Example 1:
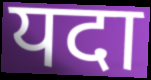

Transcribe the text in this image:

यदा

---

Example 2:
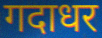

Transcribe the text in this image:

गदाधर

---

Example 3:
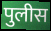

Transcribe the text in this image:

पुलीस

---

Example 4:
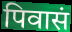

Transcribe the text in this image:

पिवासं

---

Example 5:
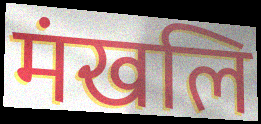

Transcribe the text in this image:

मंखलि